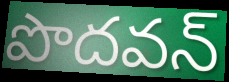
పొదవన్